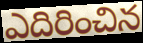
ఎదిరించిన